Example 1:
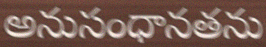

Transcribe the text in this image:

అనుసంధానతను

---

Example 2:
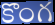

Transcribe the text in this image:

కొంగ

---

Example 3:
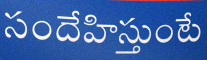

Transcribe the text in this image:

సందేహిస్తుంటే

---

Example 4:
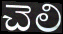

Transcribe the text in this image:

చెలి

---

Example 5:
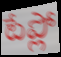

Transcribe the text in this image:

టేప్లో